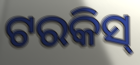
ଟରକିସ୍